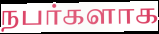
நபர்களாக